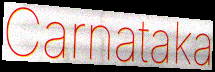
Carnataka